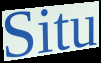
Situ